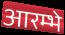
आरम्भे